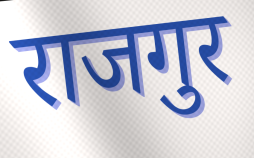
राजगुर